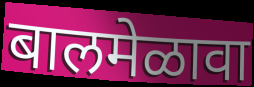
बालमेळावा